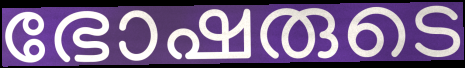
ഭോഷരുടെ